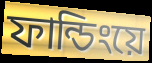
ফান্ডিংয়ে